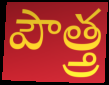
పౌత్త్ర